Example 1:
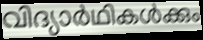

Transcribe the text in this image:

വിദ്യാർഥികൾക്കും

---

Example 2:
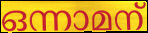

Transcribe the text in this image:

ഒന്നാമന്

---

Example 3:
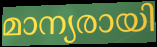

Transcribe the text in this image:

മാന്യരായി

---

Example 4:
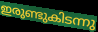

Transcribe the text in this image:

ഇരുണ്ടുകിടന്നു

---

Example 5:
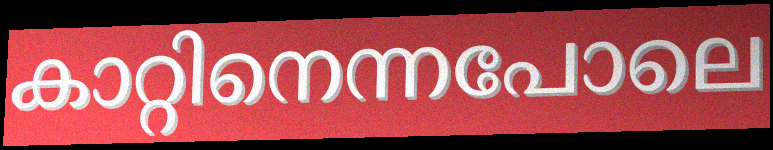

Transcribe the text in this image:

കാറ്റിനെന്നപോലെ